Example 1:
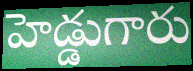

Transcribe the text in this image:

హెడ్డుగారు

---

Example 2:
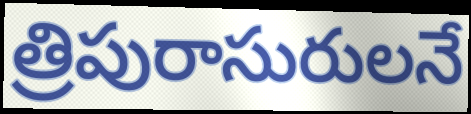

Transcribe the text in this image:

త్రిపురాసురులనే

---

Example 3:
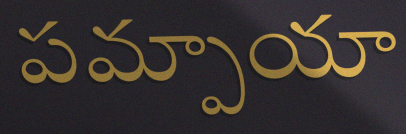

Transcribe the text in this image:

పమ్పాయా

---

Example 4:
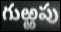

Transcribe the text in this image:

గుఱ్ఱపు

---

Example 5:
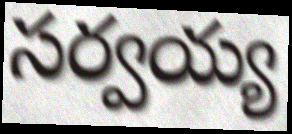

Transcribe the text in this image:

సర్వయ్య